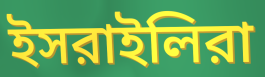
ইসরাইলিরা